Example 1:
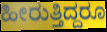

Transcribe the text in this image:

ಹೀರುತ್ತಿದ್ದರೂ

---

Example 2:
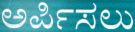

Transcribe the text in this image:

ಅರ್ಪಿಸಲು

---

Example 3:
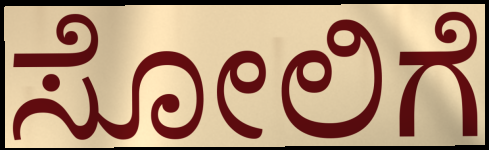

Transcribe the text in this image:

ಸೋಲಿಗೆ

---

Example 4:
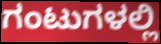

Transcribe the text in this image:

ಗಂಟುಗಳಲ್ಲಿ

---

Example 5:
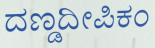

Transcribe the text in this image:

ದಣ್ಡದೀಪಿಕಂ